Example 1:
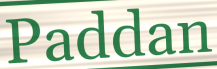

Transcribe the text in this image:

Paddan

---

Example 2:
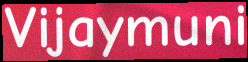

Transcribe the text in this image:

Vijaymuni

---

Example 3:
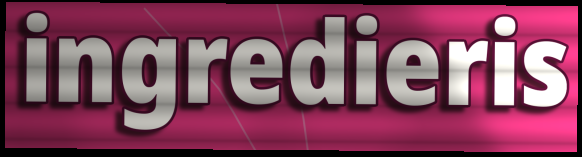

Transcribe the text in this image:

ingredieris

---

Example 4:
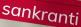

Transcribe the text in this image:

sankranti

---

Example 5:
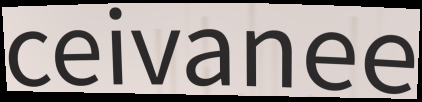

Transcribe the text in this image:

ceivanee